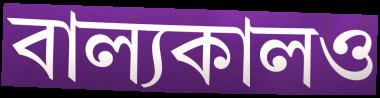
বাল্যকালও